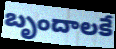
బృందాలకే